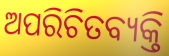
ଅପରିଚିତବ୍ୟକ୍ତି